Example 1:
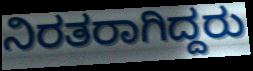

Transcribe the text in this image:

ನಿರತರಾಗಿದ್ದರು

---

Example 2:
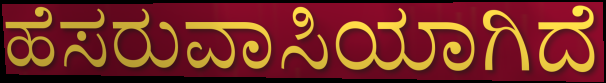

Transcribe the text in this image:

ಹೆಸರುವಾಸಿಯಾಗಿದೆ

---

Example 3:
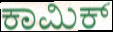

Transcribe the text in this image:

ಕಾಮಿಕ್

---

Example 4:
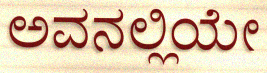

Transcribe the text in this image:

ಅವನಲ್ಲಿಯೇ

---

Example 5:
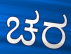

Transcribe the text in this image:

ಚರ